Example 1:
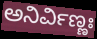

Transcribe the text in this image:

ಅನಿರ್ವಿಣ್ಣಃ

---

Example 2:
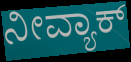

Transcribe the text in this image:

ನೀವ್ಯಾಕ್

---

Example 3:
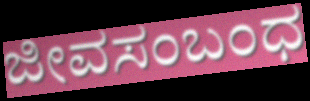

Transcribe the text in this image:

ಜೀವಸಂಬಂಧ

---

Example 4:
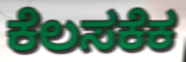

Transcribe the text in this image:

ಕೆಲಸಕೆಕ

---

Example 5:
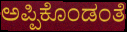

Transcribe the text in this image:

ಅಪ್ಪಿಕೊಂಡಂತೆ